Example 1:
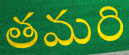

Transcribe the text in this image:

తమరి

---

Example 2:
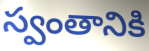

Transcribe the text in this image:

స్వంతానికి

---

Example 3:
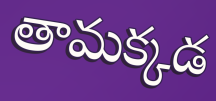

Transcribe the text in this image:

తామక్కడ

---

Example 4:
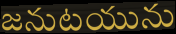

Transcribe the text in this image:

జనుటయును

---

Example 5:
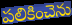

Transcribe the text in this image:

పలికించెను